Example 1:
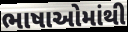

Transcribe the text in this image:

ભાષાઓમાંથી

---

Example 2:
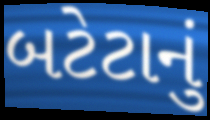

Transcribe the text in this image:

બટેટાનું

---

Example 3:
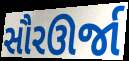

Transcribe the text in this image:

સૌરઊર્જા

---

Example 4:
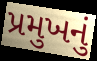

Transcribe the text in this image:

પ્રમુખનું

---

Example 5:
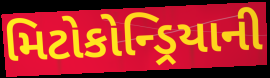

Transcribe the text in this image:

મિટોકોન્ડ્રિયાની